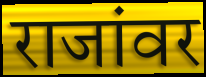
राजांवर